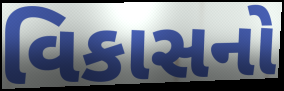
વિકાસનો